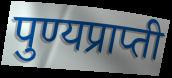
पुण्यप्राप्ती